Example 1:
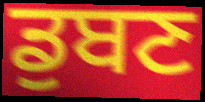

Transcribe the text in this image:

ਡੁਬਣ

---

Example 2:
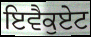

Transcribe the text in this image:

ਇਵੈਕੁਏਟ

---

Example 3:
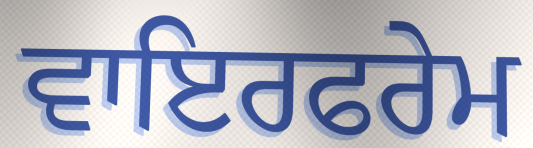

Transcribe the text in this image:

ਵਾਇਰਫਰੇਮ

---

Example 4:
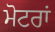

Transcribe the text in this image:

ਮੋਟਰਾਂ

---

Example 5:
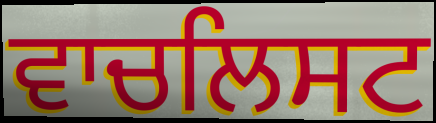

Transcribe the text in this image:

ਵਾਚਲਿਸਟ